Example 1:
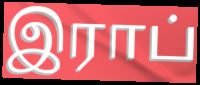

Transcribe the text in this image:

இராப்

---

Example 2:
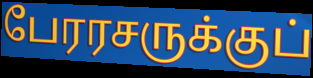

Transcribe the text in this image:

பேரரசருக்குப்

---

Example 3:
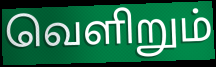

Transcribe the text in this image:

வெளிறும்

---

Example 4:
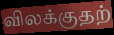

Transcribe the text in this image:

விலக்குதற்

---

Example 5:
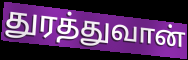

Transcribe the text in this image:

துரத்துவான்